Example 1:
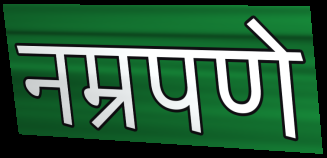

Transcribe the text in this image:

नम्रपणे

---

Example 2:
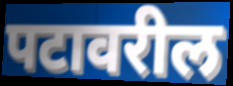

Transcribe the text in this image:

पटावरील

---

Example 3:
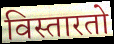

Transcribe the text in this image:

विस्तारतो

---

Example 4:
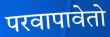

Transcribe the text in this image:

परवापावेतो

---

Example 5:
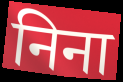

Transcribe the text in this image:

निना